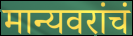
मान्यवरांचं